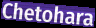
Chetohara